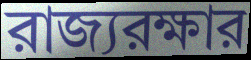
রাজ্যরক্ষার